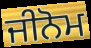
ਜੀਨੋਮ